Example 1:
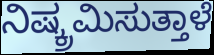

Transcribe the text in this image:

ನಿಷ್ಕ್ರಮಿಸುತ್ತಾಳೆ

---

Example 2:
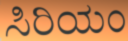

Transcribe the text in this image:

ಸಿರಿಯಂ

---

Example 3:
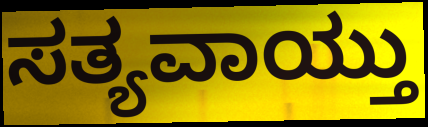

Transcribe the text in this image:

ಸತ್ಯವಾಯ್ತು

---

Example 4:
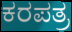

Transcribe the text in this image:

ಕರಪತ್ರ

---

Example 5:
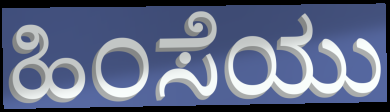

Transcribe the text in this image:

ಹಿಂಸೆಯು